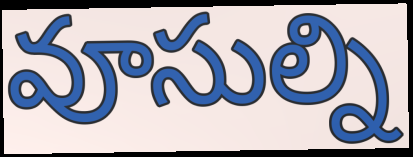
వూసుల్ని